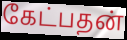
கேட்பதன்